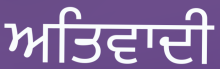
ਅਤਿਵਾਦੀ